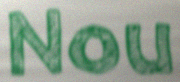
Nou